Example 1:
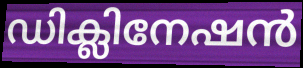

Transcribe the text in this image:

ഡിക്ലിനേഷൻ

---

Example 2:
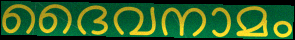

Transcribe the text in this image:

ദൈവനാമം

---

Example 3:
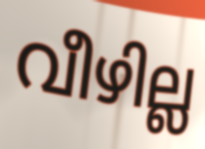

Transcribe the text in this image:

വീഴില്ല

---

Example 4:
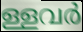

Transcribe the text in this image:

ള്ളവർ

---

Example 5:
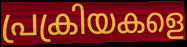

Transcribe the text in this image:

പ്രക്രിയകളെ